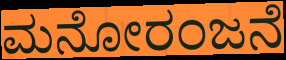
ಮನೋರಂಜನೆ